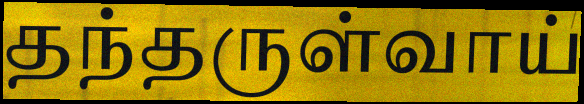
தந்தருள்வாய்